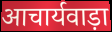
आचार्यवाड़ा